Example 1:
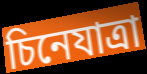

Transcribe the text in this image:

চিনেযাত্ৰা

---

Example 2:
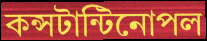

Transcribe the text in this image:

কন্সটান্টিনোপল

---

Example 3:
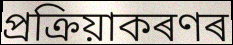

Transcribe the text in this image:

প্ৰক্ৰিয়াকৰণৰ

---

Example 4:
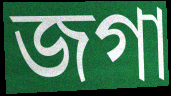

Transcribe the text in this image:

জগা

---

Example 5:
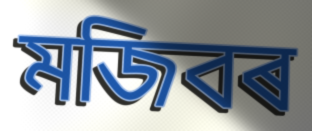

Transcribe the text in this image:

মজিবৰ